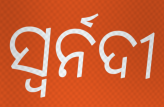
ସ୍ୱର୍ନଦୀ